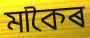
মাকৈৰ